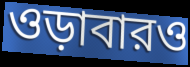
ওড়াবারও